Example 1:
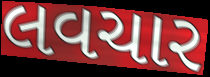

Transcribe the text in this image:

લવચાર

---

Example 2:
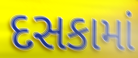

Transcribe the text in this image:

દસકામાં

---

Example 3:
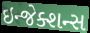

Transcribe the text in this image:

ઇન્જેક્શન્સ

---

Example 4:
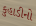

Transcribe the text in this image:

કુહાડીનો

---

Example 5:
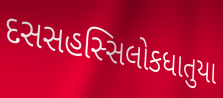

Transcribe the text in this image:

દસસહસ્સિલોકધાતુયા